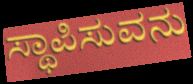
ಸ್ಥಾಪಿಸುವನು